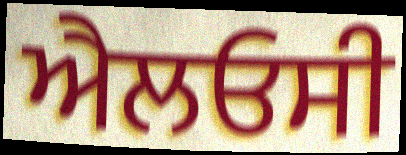
ਐਲਓਸੀ